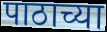
पाठाच्या